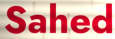
Sahed